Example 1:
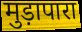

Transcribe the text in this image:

मुड़ापारा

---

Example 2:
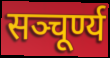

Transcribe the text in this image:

सञ्चूर्ण्य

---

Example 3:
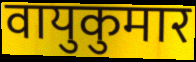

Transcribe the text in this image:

वायुकुमार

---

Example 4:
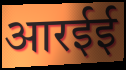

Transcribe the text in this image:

आरईई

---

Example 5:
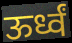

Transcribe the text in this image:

ऊर्ध्वं